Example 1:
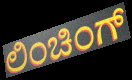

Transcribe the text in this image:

ಲಿಂಚಿಂಗ್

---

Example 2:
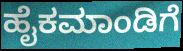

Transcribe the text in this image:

ಹೈಕಮಾಂಡಿಗೆ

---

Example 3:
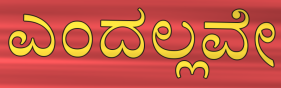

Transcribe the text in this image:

ಎಂದಲ್ಲವೇ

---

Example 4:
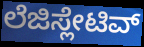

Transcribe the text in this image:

ಲೆಜಿಸ್ಲೇಟಿವ್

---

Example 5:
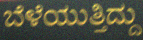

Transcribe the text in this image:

ಬೆಳೆಯುತ್ತಿದ್ದು